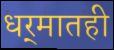
धर्मातही